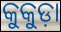
କୁକୁଡ଼ା